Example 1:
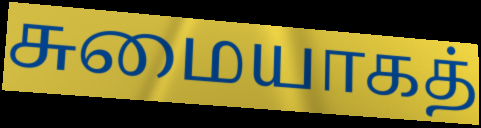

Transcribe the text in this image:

சுமையாகத்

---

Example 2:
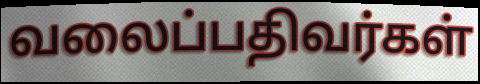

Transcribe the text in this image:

வலைப்பதிவர்கள்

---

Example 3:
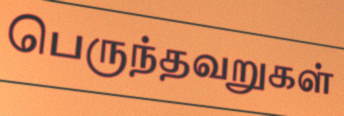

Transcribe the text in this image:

பெருந்தவறுகள்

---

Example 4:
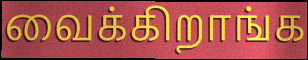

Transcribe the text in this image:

வைக்கிறாங்க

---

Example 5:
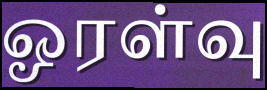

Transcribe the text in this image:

ஓரள்வு